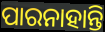
ପାରନାହାନ୍ତି